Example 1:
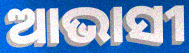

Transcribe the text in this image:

ଆଭାସୀ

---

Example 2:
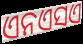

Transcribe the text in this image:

ଏନଏସଏ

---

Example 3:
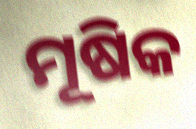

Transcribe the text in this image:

ମୂଷିକ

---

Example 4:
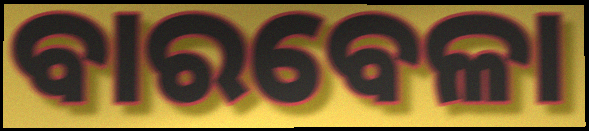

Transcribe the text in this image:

ବାରବେଳା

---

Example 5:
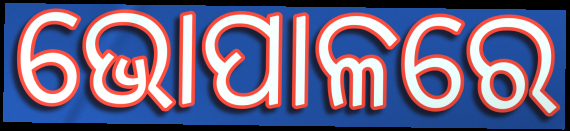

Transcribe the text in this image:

ଭୋପାଳରେ